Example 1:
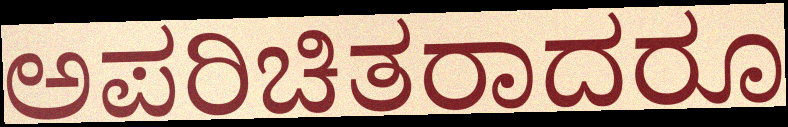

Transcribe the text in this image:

ಅಪರಿಚಿತರಾದರೂ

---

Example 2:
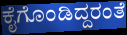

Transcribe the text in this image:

ಕೈಗೊಂಡಿದ್ದರಂತೆ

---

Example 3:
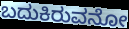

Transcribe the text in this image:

ಬದುಕಿರುವನೋ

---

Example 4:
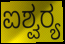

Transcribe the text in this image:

ಐಶ್ವರ‍್ಯ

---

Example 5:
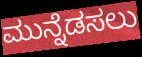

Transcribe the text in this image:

ಮುನ್ನೆಡಸಲು